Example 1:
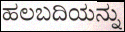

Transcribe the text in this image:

ಹಲಬದಿಯನ್ನು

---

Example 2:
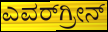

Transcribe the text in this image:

ಎವರ್‌ಗ್ರೀನ್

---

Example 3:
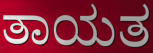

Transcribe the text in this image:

ತಾಯತ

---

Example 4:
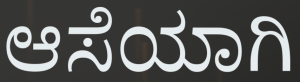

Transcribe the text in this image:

ಆಸೆಯಾಗಿ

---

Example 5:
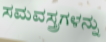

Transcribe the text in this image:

ಸಮವಸ್ತ್ರಗಳನ್ನು